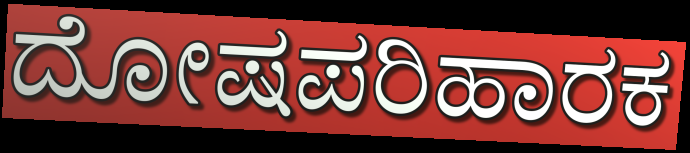
ದೋಷಪರಿಹಾರಕ